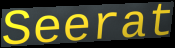
Seerat